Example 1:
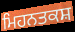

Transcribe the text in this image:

ਮਿਹਨਤਕਸ਼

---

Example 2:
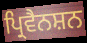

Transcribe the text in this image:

ਪ੍ਰਿਵੈਨਸ਼ਨ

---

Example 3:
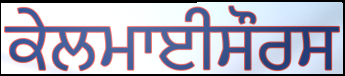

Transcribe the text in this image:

ਕੇਲਮਾਈਸੌਰਸ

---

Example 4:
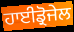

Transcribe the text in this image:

ਹਾਈਡ੍ਰੋਜੇਲ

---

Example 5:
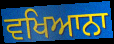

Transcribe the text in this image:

ਵਖਿਆਨਾ